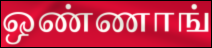
ஒண்ணாங்